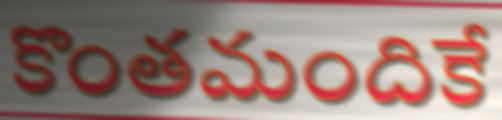
కొంతమందికే